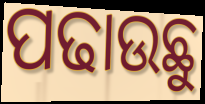
ପଢାଉଛୁ